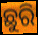
ଛୁରି